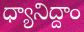
ధ్యానిద్దాం